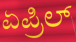
ಏಪ್ರಿಲ್